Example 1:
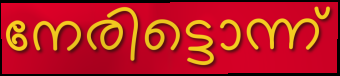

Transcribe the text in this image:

നേരിട്ടൊന്ന്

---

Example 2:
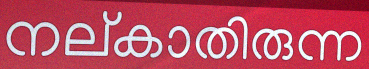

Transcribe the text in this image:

നല്കാതിരുന്ന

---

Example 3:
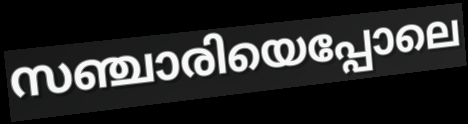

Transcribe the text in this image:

സഞ്ചാരിയെപ്പോലെ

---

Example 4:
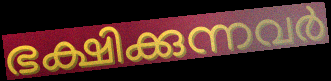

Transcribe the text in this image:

ഭക്ഷിക്കുന്നവർ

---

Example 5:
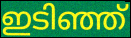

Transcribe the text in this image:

ഇടിഞ്ഞ്